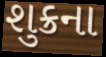
શુક્રના